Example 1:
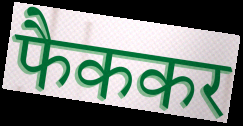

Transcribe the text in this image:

फैककर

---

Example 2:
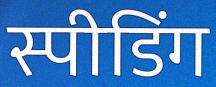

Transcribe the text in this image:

स्‍पीडिंग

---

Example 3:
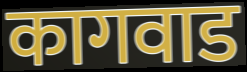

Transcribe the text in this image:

कागवाड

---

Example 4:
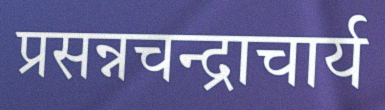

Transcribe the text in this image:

प्रसन्नचन्द्राचार्य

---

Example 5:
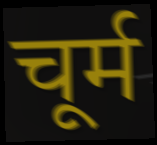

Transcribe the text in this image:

चूर्म